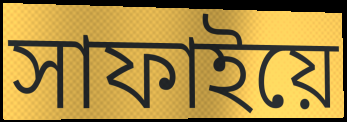
সাফাইয়ে